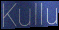
Kullu